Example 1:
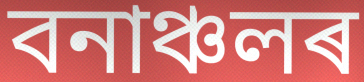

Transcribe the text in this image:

বনাঞ্চলৰ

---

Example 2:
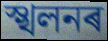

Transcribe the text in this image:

স্খলনৰ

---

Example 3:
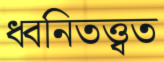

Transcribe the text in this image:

ধ্বনিতত্ত্বত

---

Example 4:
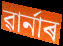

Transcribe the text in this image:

ৱাৰ্নাৰ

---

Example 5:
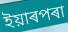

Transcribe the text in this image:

ইয়াৰপৰা